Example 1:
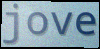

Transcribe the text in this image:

jove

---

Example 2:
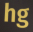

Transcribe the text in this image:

hg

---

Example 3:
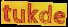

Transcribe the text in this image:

tukde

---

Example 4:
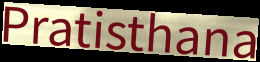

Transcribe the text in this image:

Pratisthana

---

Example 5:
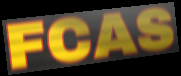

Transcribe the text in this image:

FCAS